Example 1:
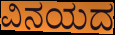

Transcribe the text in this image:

ವಿನಯದ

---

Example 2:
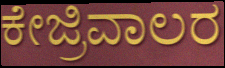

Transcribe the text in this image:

ಕೇಜ್ರಿವಾಲರ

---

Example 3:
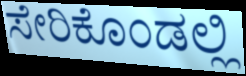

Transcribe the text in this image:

ಸೇರಿಕೊಂಡಲ್ಲಿ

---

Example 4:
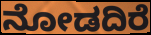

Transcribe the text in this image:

ನೋಡದಿರೆ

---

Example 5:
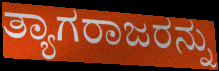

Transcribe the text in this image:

ತ್ಯಾಗರಾಜರನ್ನು